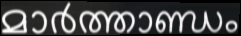
മാർത്താണ്ഡം